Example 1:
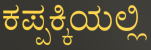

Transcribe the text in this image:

ಕಪ್ಪಕ್ಕಿಯಲ್ಲಿ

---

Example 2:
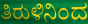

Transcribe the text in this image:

ತಿರುಳಿನಿಂದ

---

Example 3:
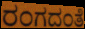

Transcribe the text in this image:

ರಂಗದಂತೆ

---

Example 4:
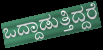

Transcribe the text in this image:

ಒದ್ದಾಡುತ್ತಿದ್ದರೆ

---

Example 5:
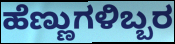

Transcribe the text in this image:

ಹೆಣ್ಣುಗಳಿಬ್ಬರ